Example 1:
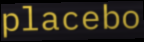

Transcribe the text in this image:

placebo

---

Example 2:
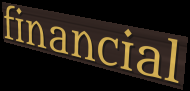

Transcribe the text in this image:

financial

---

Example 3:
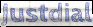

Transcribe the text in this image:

Justdial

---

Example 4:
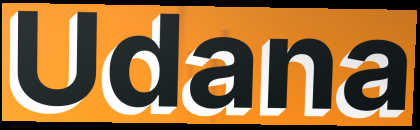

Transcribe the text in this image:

Udana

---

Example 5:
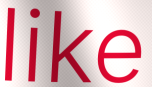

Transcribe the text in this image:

like